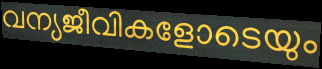
വന്യജീവികളോടെയും